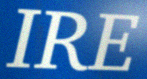
IRE